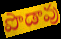
పొడావు